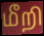
மீறி